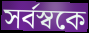
সর্বস্বকে